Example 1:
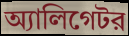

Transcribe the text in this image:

অ্যালিগেটর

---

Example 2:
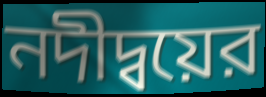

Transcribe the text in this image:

নদীদ্বয়ের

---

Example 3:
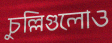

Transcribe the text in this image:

চুল্লিগুলোও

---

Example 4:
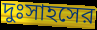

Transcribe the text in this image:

দুঃসাহসের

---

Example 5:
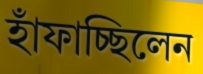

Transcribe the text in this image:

হাঁফাচ্ছিলেন